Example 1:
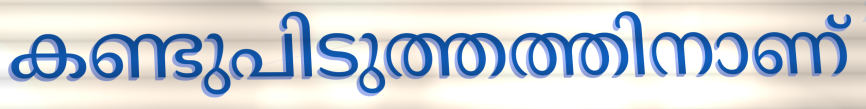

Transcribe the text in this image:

കണ്ടുപിടുത്തത്തിനാണ്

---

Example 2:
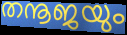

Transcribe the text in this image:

തനൂജയും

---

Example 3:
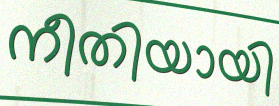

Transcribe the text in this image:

നീതിയായി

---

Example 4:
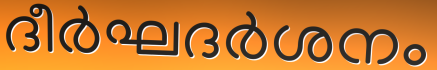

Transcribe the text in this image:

ദീർഘദർശനം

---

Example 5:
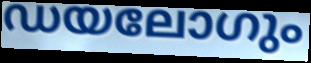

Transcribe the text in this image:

ഡയലോഗും